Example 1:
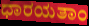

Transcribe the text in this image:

ಧಾರಯತಾಂ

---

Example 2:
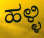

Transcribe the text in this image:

ಹಳ್ಳಿ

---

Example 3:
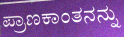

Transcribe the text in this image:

ಪ್ರಾಣಕಾಂತನನ್ನು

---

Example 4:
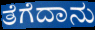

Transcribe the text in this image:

ತೆಗೆದಾನು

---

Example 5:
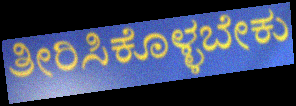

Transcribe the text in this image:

ತೀರಿಸಿಕೊಳ್ಳಬೇಕು